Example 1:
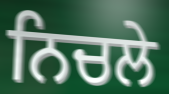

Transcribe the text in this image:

ਨਿਚਲੇ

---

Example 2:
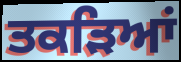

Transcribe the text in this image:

ਤਕੜਿਆਂ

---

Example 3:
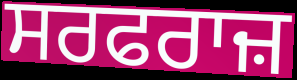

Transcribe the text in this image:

ਸਰਫਰਾਜ਼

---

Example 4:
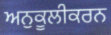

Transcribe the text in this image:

ਅਨੁਕੂਲੀਕਰਨ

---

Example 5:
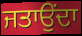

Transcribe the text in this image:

ਜਤਾਉਂਦਾ